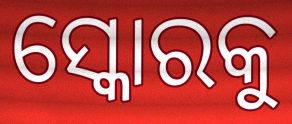
ସ୍କୋରକୁ